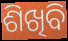
ଶିଖିବି